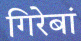
गिरेबां